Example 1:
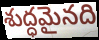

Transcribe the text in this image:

శుద్ధమైనది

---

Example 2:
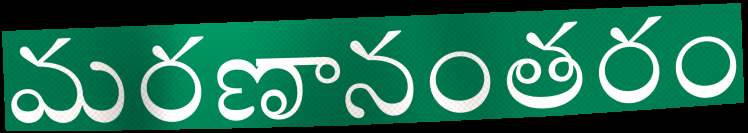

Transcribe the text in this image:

మరణానంతరం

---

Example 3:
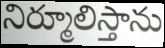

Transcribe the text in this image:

నిర్మూలిస్తాను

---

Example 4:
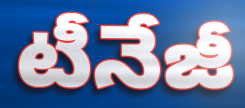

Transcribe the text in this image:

టీనేజీ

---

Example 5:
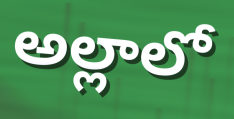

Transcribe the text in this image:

అల్లాలో